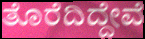
ತೊರೆದಿದ್ದೇವೆ